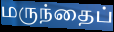
மருந்தைப்